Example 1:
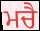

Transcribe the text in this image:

ਮਚੈ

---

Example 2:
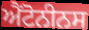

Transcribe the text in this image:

ਐਂਟੋਨੀਨਸ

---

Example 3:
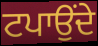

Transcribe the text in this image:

ਟਪਾਉਂਦੇ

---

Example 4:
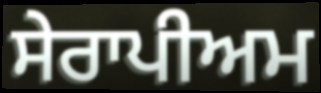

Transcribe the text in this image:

ਸੇਰਾਪੀਅਮ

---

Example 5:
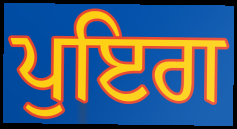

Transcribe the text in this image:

ਪੁਇਗ